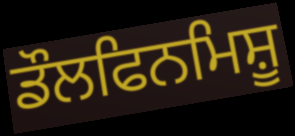
ਡੌਲਫਿਨਮਿਸ਼ੂ